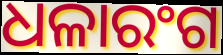
ଧଳାରଂଗ